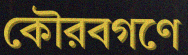
কৌরবগণে